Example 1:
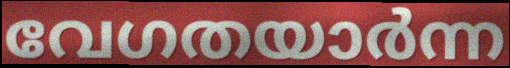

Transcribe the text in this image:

വേഗതയാർന്ന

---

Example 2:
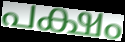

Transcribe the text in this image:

പക്ഷം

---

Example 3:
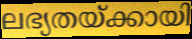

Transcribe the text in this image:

ലഭ്യതയ്ക്കായി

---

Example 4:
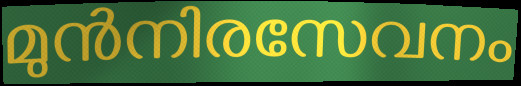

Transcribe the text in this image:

മുൻനിരസേവനം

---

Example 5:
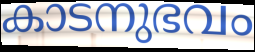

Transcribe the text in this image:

കാടനുഭവം